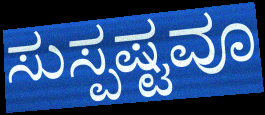
ಸುಸ್ಪಷ್ಟವೂ